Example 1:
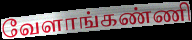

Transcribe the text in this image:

வேளாங்கண்ணி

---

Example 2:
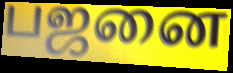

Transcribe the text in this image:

பஜனை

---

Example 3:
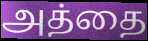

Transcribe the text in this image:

அத்தை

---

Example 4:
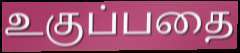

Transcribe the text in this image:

உகுப்பதை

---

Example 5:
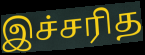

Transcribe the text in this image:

இச்சரித